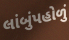
લાંબુંપહોળું